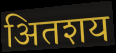
अितशय